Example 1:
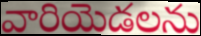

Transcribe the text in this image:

వారియెడలను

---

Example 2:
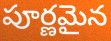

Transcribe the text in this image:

పూర్ణమైన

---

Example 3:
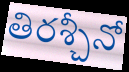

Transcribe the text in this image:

తిరశ్చీనో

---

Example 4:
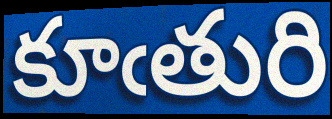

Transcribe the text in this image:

కూఁతురి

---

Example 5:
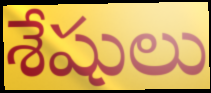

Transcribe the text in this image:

శేషులు